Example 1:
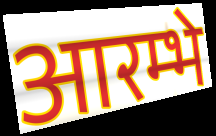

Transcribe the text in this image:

आरम्भे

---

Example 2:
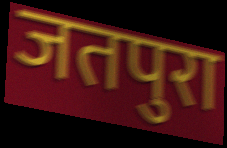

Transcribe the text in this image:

जतपुरा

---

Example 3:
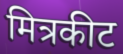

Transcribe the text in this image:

मित्रकीट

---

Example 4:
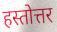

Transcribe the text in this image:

हस्तोत्तर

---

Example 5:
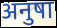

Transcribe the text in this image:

अनुषा